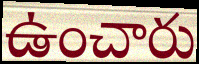
ఉంచారు